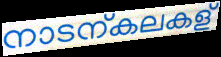
നാടന്കലകള്